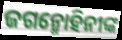
ଜଗନ୍ମୋହିନୀଙ୍କ